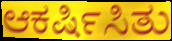
ಆಕರ್ಷಿಸಿತು